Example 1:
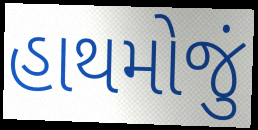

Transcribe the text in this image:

હાથમોજું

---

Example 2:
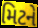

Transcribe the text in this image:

મિટને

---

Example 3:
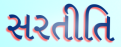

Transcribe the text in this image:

સરતીતિ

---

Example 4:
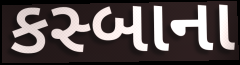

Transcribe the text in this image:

કસ્બાના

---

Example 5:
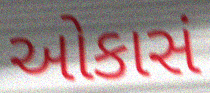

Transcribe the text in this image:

ઓકાસં